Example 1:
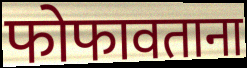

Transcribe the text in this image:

फोफावताना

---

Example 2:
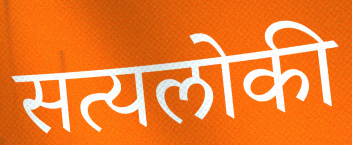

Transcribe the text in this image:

सत्यलोकी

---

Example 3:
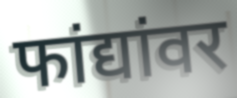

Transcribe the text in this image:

फांद्यांवर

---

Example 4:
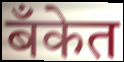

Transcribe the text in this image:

बँकेत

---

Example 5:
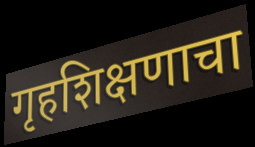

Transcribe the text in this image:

गृहशिक्षणाचा